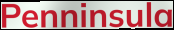
Penninsula